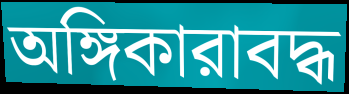
অঙ্গিকারাবদ্ধ